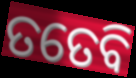
ତତେବି